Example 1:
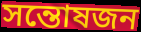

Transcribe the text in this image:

সন্তোষজন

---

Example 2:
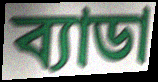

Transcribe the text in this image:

ব্যাডা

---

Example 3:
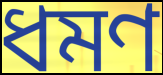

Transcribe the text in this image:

ধমণ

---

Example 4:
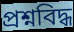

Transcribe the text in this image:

প্রশ্নবিদ্ধ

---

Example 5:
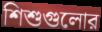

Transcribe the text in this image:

শিশুগুলোর